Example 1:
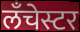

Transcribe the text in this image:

लँचेस्टर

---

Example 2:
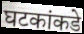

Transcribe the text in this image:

घटकांकडे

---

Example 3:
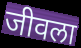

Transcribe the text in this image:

जीवला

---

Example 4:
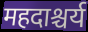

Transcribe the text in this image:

महदाश्चर्य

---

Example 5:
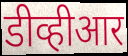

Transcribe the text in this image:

डीव्हीआर